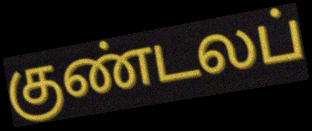
குண்டலப்